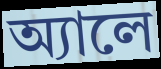
অ্যালে